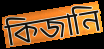
কিজানি